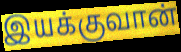
இயக்குவான்